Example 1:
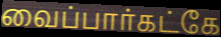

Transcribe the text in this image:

வைப்பார்கட்கே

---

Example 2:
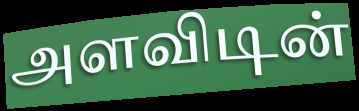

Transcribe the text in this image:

அளவிடின்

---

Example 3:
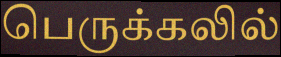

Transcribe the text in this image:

பெருக்கலில்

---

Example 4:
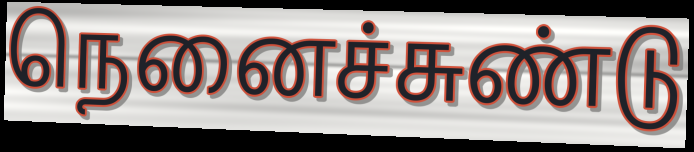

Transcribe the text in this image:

நெனைச்சுண்டு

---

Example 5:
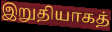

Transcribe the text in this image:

இறுதியாகத்